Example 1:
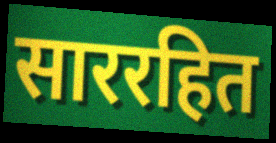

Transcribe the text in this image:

साररहित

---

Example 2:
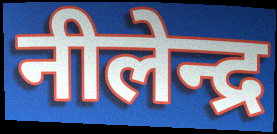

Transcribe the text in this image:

नीलेन्द्र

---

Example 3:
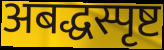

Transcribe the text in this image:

अबद्धस्पृष्ट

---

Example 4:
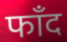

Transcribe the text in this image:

फाँद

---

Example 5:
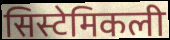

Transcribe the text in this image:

सिस्टेमिकली